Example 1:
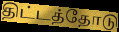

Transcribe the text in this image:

திட்டத்தோடு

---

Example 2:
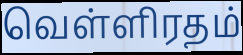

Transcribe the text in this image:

வெள்ளிரதம்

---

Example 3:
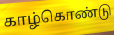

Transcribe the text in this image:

காழ்கொண்டு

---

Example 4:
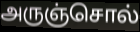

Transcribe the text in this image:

அருஞ்சொல்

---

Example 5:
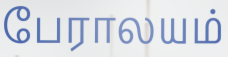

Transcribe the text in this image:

பேராலயம்